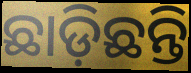
ଛାଡ଼ିଛନ୍ତି